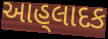
આહ્‌લાદક